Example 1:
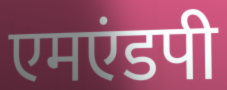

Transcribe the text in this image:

एमएंडपी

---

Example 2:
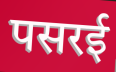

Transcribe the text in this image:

पसरई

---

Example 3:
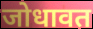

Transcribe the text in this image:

जोधावत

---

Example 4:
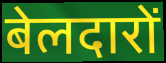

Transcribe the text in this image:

बेलदारों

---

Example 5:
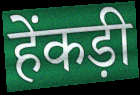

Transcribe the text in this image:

हेंकड़ी